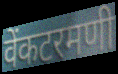
वेंकटरमणी